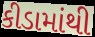
કીડામાંથી